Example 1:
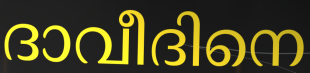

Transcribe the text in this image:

ദാവീദിനെ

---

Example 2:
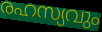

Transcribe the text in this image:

രഹസ്യവും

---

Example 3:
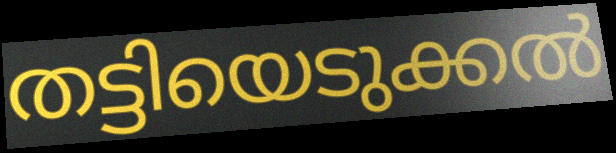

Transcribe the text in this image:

തട്ടിയെടുക്കൽ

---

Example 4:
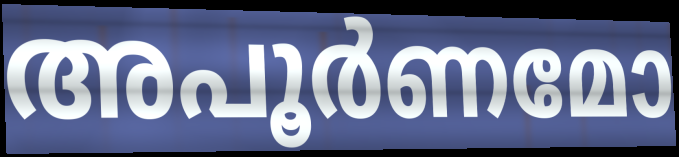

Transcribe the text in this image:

അപൂർണമോ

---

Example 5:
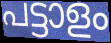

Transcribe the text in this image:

പട്ടാളം